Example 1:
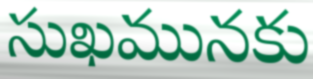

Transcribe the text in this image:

సుఖమునకు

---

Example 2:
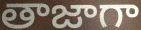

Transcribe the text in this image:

తాజాగా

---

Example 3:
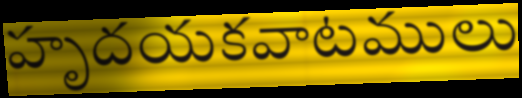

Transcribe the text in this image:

హృదయకవాటములు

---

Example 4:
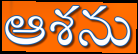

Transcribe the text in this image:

ఆశను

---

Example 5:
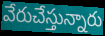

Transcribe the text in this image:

వేరుచేస్తున్నారు